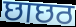
छाछठ